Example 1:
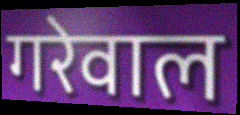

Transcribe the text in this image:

गरेवाल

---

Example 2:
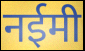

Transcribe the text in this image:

नईमी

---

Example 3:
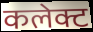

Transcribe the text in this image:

कलेक्ट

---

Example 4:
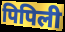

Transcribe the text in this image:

पिपिली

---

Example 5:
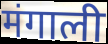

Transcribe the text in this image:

मंगाली